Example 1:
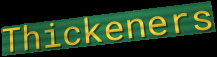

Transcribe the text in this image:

Thickeners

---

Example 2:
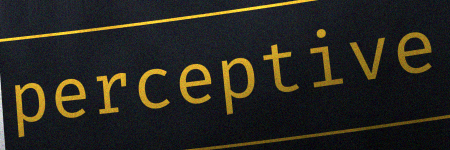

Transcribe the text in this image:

perceptive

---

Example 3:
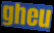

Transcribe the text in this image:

gheu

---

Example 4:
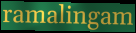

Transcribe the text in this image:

ramalingam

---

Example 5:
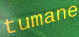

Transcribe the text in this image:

tumane